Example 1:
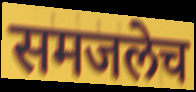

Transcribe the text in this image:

समजलेच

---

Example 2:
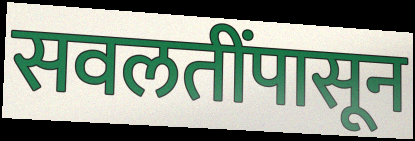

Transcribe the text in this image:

सवलतींपासून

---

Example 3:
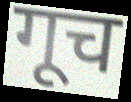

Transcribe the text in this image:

गूच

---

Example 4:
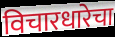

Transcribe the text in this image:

विचारधारेचा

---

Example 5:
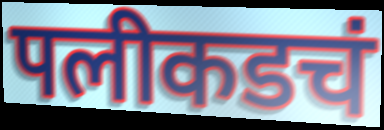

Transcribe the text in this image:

पलीकडचं